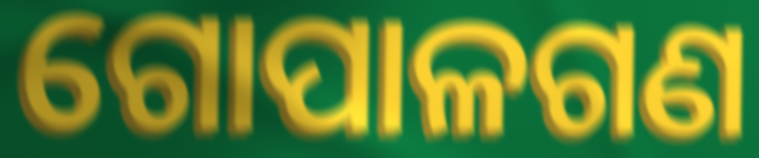
ଗୋପାଳଗଣ